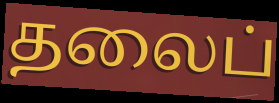
தலைப்